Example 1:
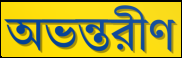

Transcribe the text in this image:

অভন্তরীণ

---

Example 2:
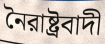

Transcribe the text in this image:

নৈরাষ্ট্রবাদী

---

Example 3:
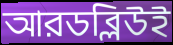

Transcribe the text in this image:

আরডব্লিউই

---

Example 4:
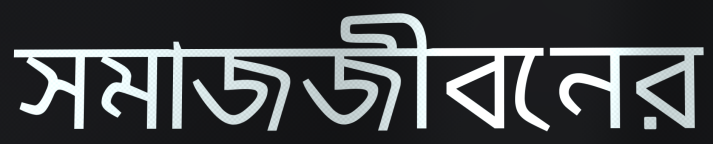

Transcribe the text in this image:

সমাজজীবনের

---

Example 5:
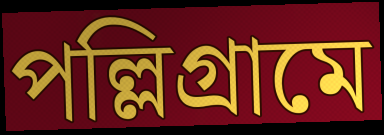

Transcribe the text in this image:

পল্লিগ্রামে